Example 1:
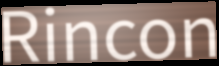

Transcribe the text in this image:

Rincon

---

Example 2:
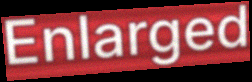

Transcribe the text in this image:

Enlarged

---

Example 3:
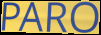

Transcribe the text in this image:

PARO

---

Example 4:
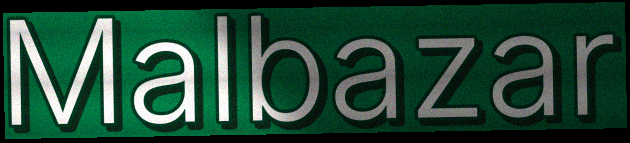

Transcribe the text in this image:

Malbazar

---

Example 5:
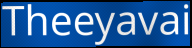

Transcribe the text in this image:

Theeyavai